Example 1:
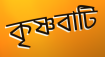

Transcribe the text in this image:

কৃষ্ণবাটি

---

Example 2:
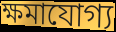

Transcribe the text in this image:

ক্ষমাযোগ্য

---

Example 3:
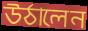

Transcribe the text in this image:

উঠালেন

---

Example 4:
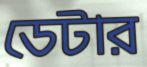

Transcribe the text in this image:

ডেটার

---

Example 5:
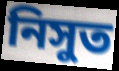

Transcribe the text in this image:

নিসুত